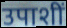
उपाशीं